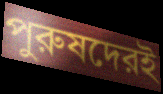
পুরুষদেরই